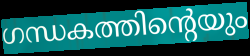
ഗന്ധകത്തിന്റെയും